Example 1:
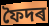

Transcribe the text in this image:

ফৈদৰ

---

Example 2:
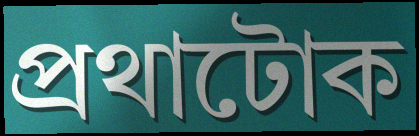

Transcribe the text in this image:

প্ৰথাটোক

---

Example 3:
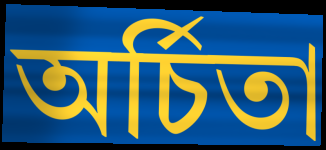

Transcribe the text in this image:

অৰ্চিতা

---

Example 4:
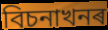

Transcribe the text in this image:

বিচনাখনৰ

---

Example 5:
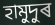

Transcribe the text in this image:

হামুদুৰ